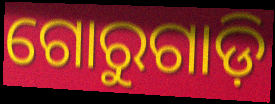
ଗୋରୁଗାଡ଼ି